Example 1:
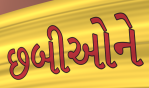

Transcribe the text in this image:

છબીઓને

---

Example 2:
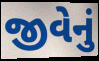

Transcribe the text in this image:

જીવેનું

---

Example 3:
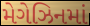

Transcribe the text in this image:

મેગેઝિનમાં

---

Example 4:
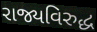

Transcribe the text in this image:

રાજ્યવિરુદ્ધ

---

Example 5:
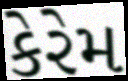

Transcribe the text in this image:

કેરેમ